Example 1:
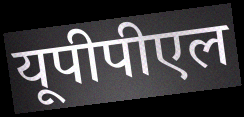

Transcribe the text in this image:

यूपीपीएल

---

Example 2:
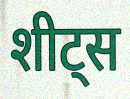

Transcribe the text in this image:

शीट्स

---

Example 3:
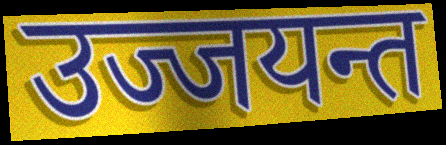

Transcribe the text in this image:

उज्जयन्त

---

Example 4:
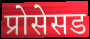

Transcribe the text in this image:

प्रोसेसड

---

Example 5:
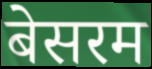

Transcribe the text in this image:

बेसरम